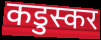
कडुस्कर